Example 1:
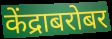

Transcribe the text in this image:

केंद्राबरोबर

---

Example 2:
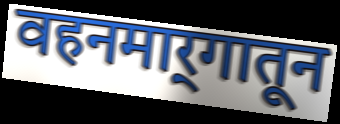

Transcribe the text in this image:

वहनमार्गातून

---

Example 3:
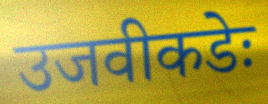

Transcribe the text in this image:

उजवीकडेः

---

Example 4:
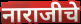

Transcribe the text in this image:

नाराजीचे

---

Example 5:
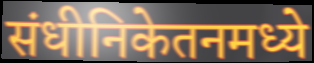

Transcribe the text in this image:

संधीनिकेतनमध्ये